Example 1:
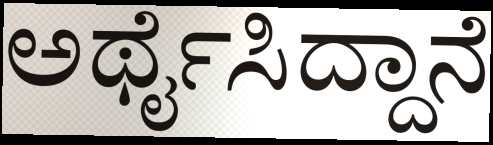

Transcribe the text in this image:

ಅರ್ಥೈಸಿದ್ದಾನೆ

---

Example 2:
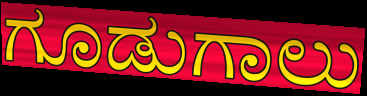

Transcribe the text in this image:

ಗೂಡುಗಾಲು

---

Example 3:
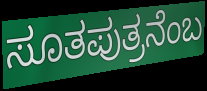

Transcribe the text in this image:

ಸೂತಪುತ್ರನೆಂಬ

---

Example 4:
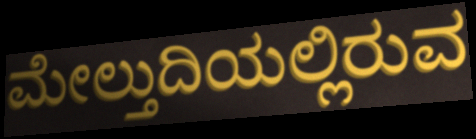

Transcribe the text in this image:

ಮೇಲ್ತುದಿಯಲ್ಲಿರುವ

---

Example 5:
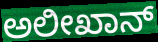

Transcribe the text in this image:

ಅಲೀಖಾನ್